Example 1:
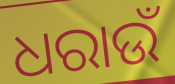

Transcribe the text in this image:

ଧରାଉଁ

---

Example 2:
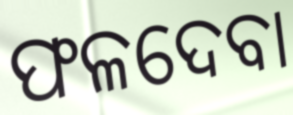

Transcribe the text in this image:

ଫଳଦେବା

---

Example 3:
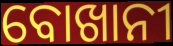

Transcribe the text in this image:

ବୋଖାନୀ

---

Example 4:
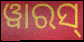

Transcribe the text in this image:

ୱାରସ୍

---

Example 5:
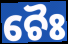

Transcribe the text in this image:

ଚୈଃ